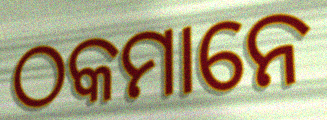
ଠକମାନେ